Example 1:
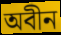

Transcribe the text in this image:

অবীন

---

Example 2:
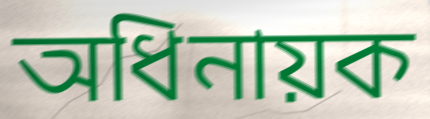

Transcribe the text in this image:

অধিনায়ক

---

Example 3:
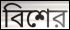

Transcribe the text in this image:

বিশের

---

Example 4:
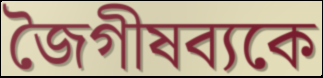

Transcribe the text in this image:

জৈগীষব্যকে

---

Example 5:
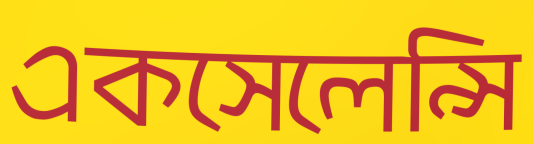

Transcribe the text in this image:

একসেলেন্সি